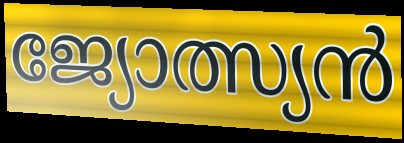
ജ്യോത്സ്യൻ